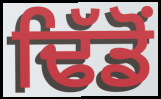
ਢਿੱਡੋਂ